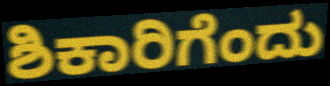
ಶಿಕಾರಿಗೆಂದು